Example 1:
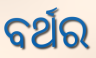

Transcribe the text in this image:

ବର୍ଥର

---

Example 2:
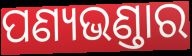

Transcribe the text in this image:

ପଣ୍ୟଭଣ୍ଡାର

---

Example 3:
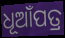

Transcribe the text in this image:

ଧୂଆଁପତ୍ର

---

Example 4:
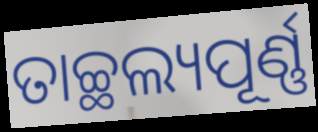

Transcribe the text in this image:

ତାଚ୍ଛଲ୍ୟପୂର୍ଣ୍ଣ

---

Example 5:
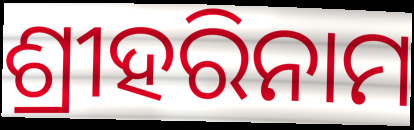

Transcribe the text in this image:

ଶ୍ରୀହରିନାମ